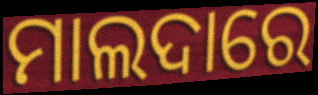
ମାଲଦାରେ